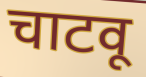
चाटवू